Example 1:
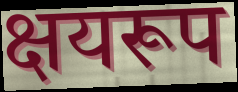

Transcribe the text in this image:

क्षयरूप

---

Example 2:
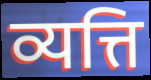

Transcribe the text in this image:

व्यत्ति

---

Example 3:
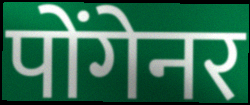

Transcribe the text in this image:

पोंगेनर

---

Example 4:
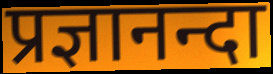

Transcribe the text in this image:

प्रज्ञानन्दा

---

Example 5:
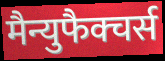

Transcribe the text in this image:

मैन्युफैक्चर्स